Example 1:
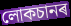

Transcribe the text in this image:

লোকচানৰ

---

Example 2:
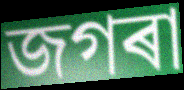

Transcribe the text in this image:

জগৰা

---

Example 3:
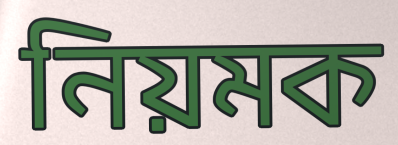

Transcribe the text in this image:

নিয়মক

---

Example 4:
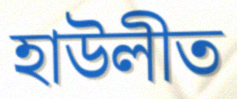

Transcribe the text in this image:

হাউলীত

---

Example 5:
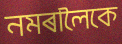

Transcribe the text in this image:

নমৰালৈকে